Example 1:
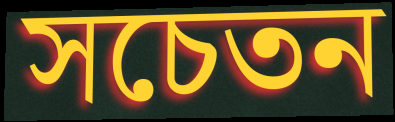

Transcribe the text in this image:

সচেতন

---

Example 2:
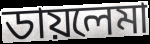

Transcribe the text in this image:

ডায়লেমা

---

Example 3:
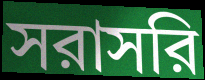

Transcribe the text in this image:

সরাসরি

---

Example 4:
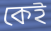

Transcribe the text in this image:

কেই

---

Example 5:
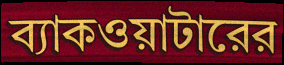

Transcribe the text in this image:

ব্যাকওয়াটারের